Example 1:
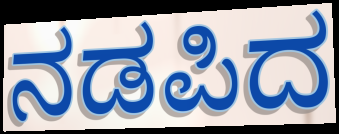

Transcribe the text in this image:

ನಡಪಿದ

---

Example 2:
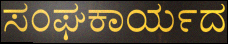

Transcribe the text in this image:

ಸಂಘಕಾರ್ಯದ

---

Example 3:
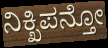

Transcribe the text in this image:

ನಿಕ್ಖಿಪನ್ತೋ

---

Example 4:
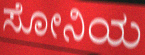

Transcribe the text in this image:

ಸೋನಿಯ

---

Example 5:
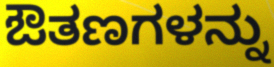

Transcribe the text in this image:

ಔತಣಗಳನ್ನು